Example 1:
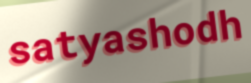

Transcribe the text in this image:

satyashodh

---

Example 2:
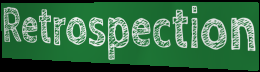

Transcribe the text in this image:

Retrospection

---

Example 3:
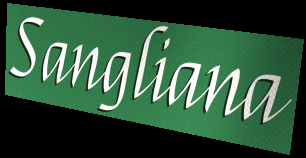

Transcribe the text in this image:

Sangliana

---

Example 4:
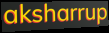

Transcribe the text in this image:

aksharrup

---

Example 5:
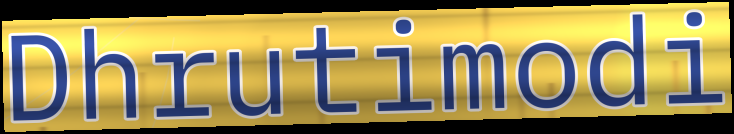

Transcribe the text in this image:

Dhrutimodi